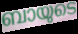
ബായുടെ